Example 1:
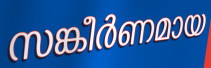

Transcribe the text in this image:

സങ്കീർണമായ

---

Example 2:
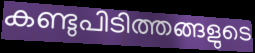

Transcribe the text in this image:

കണ്ടുപിടിത്തങ്ങളുടെ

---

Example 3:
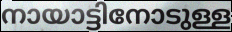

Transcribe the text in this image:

നായാട്ടിനോടുള്ള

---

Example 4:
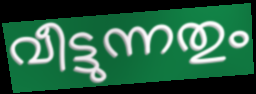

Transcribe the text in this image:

വീട്ടുന്നതും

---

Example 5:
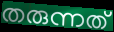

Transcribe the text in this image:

തരുന്നത്